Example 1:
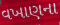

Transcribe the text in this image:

વખાણના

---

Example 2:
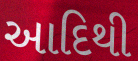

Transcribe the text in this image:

આદિથી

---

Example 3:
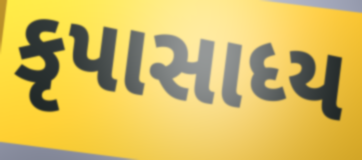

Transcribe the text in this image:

કૃપાસાધ્ય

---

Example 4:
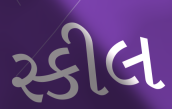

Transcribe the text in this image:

સ્કીલ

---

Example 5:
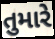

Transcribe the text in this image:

તુમારે